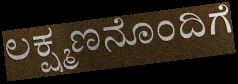
ಲಕ್ಷ್ಮಣನೊಂದಿಗೆ